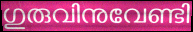
ഗുരുവിനുവേണ്ടി